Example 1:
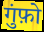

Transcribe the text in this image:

गुंफ़ो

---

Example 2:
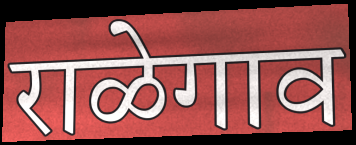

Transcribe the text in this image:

राळेगाव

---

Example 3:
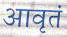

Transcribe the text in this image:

आवृतं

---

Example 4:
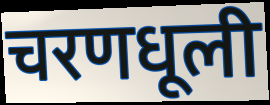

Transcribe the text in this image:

चरणधूली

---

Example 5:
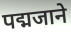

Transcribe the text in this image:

पद्मजाने